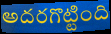
అదరగొట్టింది